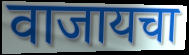
वाजायचा